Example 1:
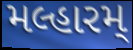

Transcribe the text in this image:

મલ્હારમ્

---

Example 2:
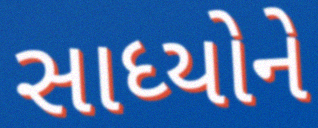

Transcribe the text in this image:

સાધ્યોને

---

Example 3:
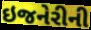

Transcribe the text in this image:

ઇજનેરીની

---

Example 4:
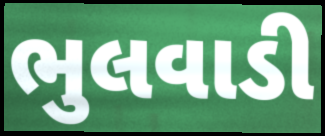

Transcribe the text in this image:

ભુલવાડી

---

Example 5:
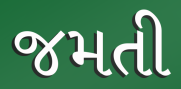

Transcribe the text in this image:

જમતી